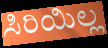
ಸಿರಿಯಿಲ್ಲ